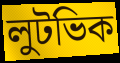
লুটভিক